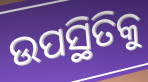
ଉପସ୍ଥିତିକୁ